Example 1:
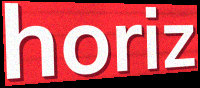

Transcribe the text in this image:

horiz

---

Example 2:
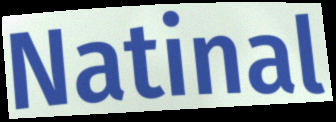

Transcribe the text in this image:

Natinal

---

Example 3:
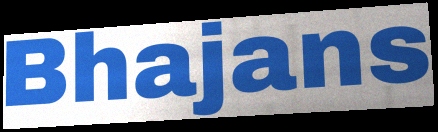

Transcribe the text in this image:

Bhajans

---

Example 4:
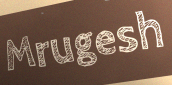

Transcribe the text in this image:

Mrugesh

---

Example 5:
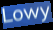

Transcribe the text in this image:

Lowy